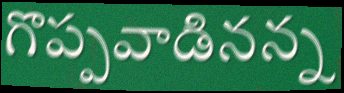
గొప్పవాడినన్న